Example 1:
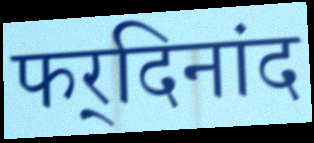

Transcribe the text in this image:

फर्दिनांद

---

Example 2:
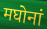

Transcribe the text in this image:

मघोनां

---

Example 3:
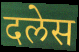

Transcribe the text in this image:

दलेस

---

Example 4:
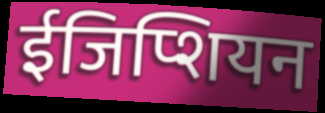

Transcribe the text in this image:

ईजिप्शियन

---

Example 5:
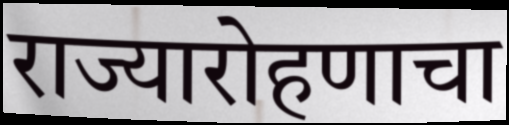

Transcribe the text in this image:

राज्यारोहणाचा